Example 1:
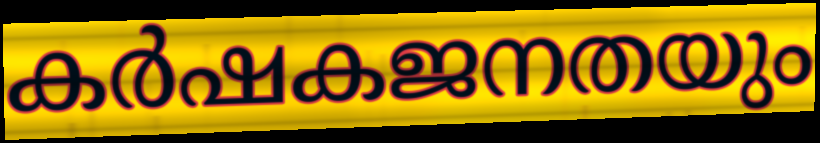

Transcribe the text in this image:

കർഷകജനതയും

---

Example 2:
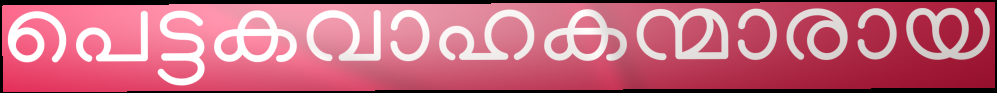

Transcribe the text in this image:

പെട്ടകവാഹകന്മാരായ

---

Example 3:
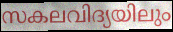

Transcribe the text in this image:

സകലവിദ്യയിലും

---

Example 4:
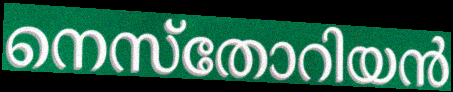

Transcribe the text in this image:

നെസ്തോറിയൻ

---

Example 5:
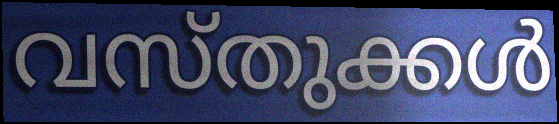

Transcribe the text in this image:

വസ്തുക്കൾ